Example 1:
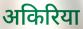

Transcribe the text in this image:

अकिरिया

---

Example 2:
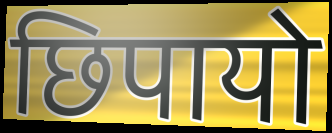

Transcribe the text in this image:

छिपायो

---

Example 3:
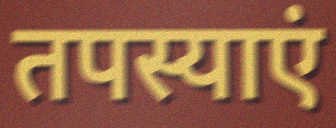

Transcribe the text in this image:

तपस्याएं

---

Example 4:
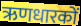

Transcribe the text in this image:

ऋणधारकों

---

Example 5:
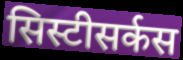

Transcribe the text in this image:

सिस्टीसर्कस